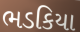
ભડકિયા